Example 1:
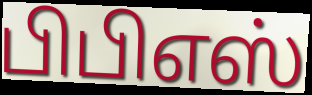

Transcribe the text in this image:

பிபிஎஸ்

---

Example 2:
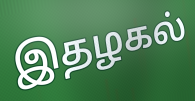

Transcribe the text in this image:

இதழகல்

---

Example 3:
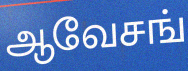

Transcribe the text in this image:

ஆவேசங்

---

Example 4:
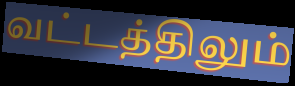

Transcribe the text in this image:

வட்டத்திலும்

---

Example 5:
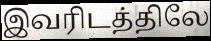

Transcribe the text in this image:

இவரிடத்திலே